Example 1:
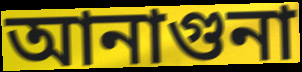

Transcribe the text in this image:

আনাগুনা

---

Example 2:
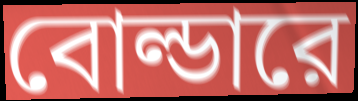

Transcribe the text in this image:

বোল্ডারে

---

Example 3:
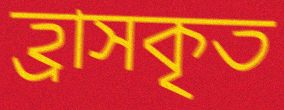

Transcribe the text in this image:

হ্রাসকৃত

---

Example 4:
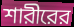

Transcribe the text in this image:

শারীরের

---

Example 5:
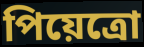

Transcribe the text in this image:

পিয়েত্রো